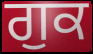
ਗੁਕ